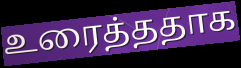
உரைத்ததாக